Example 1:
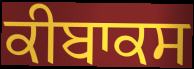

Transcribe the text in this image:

ਕੀਬਾਕਸ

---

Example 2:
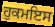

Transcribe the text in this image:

ਹੁਕਮਇਸ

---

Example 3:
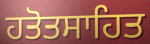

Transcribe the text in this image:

ਹਤੋਤਸਾਹਿਤ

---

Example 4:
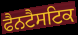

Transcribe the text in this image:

ਫੈਨਟੈਸਟਿਕ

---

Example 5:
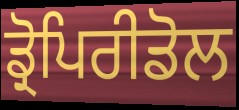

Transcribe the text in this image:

ਡ੍ਰੋਪਿਰੀਡੋਲ